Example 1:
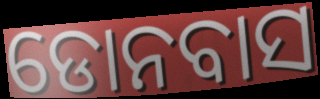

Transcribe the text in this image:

ଡୋନବାସ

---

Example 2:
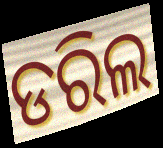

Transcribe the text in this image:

ଡରିଲ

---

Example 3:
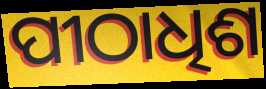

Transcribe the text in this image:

ପୀଠାଧିଶ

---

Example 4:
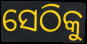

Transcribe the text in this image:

ସେଠିକୁ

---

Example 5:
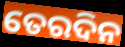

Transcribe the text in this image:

ତେରଦିନ